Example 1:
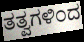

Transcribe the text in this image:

ತತ್ವಗಳಿಂದ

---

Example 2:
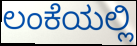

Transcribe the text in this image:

ಲಂಕೆಯಲ್ಲಿ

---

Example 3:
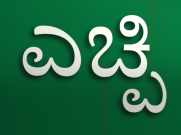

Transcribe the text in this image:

ಎಚ್ಪಿ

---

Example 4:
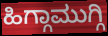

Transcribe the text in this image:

ಹಿಗ್ಗಾಮುಗ್ಗಿ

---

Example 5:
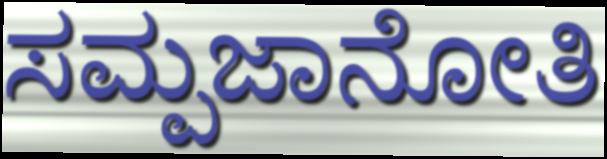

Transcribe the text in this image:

ಸಮ್ಪಜಾನೋತಿ